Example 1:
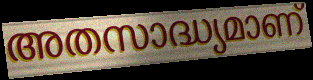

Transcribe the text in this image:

അതസാദ്ധ്യമാണ്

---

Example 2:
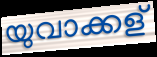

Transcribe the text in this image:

യുവാക്കള്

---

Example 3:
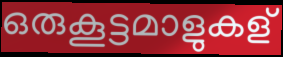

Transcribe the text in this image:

ഒരുകൂട്ടമാളുകള്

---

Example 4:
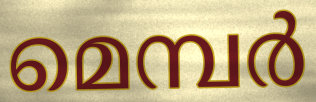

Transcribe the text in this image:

മെമ്പർ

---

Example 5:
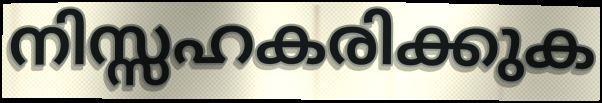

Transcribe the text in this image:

നിസ്സഹകരിക്കുക